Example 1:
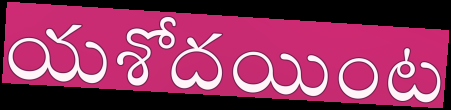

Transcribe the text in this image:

యశోదయింట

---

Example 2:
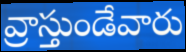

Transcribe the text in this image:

వ్రాస్తుండేవారు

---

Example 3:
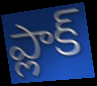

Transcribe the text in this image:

ప్లాక్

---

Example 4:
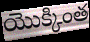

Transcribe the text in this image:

యొక్కింత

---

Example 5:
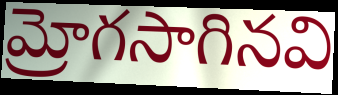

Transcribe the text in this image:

మ్రోగసాగినవి